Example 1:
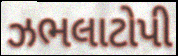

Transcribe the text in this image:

ઝભલાટોપી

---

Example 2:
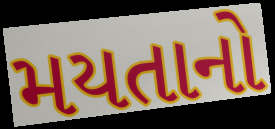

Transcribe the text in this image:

મયતાનો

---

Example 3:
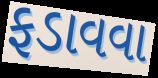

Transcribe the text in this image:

ફડાવવા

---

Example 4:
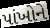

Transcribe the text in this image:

પાંખોને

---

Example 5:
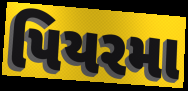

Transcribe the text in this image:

પિયરમા